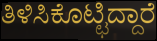
ತಿಳಿಸಿಕೊಟ್ಟಿದ್ದಾರೆ